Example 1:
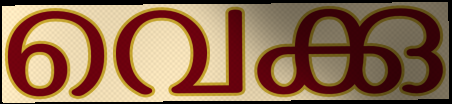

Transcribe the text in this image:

വെക്കു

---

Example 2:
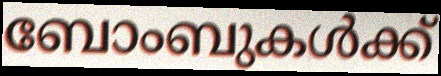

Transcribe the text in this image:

ബോംബുകൾക്ക്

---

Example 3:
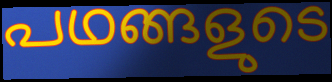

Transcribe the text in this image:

പഥങ്ങളുടെ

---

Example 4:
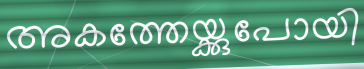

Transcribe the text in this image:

അകത്തേയ്ക്കുപോയി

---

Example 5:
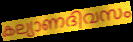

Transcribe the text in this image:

കല്യാണദിവസം